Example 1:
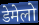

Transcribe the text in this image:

डेमेलो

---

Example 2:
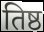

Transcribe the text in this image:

तिष्ठ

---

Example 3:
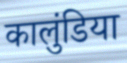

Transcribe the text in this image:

कालुंडिया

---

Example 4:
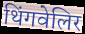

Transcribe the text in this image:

थिंगवेलिर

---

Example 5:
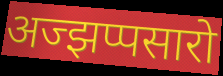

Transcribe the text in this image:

अज्झप्पसारो